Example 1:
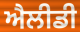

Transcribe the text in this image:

ਐਲੀਡੀ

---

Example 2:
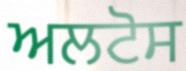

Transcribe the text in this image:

ਅਲਟੋਸ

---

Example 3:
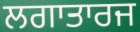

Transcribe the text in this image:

ਲਗਾਤਾਰਜ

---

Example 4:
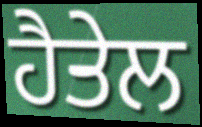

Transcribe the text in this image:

ਹੈਤੇਲ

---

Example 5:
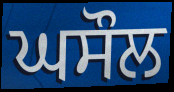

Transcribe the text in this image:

ਘਸੌਲ